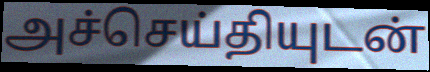
அச்செய்தியுடன்